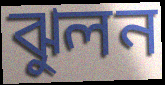
ঝুলন